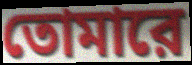
তোমারে